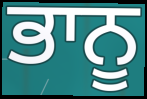
ਭਾਨੂ